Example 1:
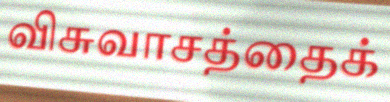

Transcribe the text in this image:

விசுவாசத்தைக்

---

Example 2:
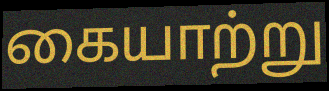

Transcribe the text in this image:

கையாற்று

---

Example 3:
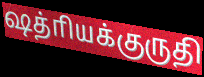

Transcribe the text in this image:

ஷத்ரியக்குருதி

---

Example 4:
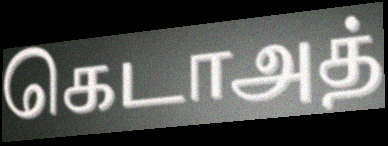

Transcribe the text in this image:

கெடாஅத்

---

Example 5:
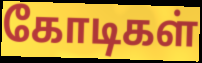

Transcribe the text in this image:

கோடிகள்